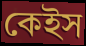
কেইস